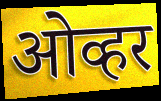
ओव्हर